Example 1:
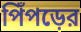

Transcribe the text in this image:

পিঁপড়ের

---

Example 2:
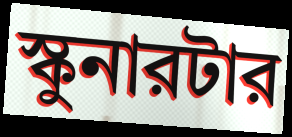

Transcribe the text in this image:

স্কুনারটার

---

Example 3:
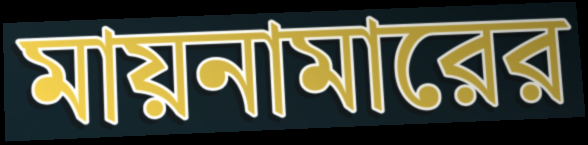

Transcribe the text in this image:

মায়নামারের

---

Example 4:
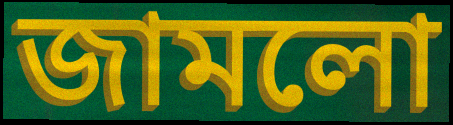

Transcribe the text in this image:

জামলো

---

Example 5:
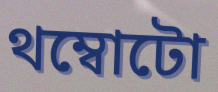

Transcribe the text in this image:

থম্বোটো